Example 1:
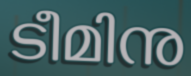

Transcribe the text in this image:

ടീമിനു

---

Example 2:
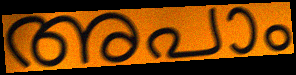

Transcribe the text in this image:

അപാം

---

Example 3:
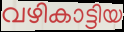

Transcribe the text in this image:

വഴികാട്ടിയ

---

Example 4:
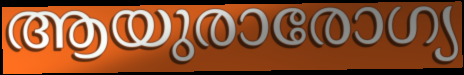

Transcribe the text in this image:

ആയുരാരോഗ്യ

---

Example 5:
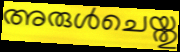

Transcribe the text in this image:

അരുൾചെയ്തു